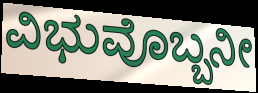
ವಿಭುವೊಬ್ಬನೀ